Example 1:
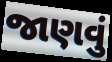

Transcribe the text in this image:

જાણવું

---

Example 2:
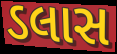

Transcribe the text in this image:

ડલાસ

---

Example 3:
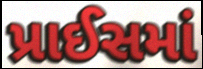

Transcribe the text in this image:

પ્રાઈસમાં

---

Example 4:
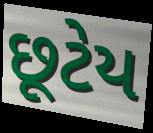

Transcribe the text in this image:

છૂટેય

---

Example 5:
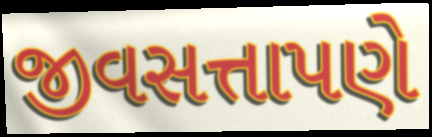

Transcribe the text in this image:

જીવસત્તાપણે